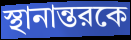
স্থানান্তরকে